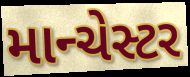
માન્ચેસ્ટર